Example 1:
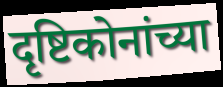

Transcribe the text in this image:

दृष्टिकोनांच्या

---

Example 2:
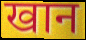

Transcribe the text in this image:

खान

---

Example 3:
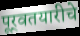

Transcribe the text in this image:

पूर्वतयारीचे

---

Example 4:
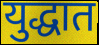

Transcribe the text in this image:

युद्धात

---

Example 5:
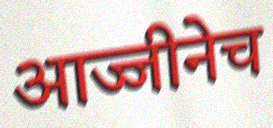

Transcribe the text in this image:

आज्जीनेच